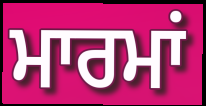
ਮਾਰਮਾਂ